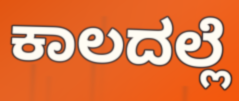
ಕಾಲದಲ್ಲೆ